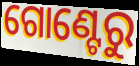
ଗୋଣ୍ଟେରୁ